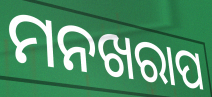
ମନଖରାପ